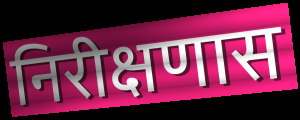
निरीक्षणास